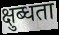
क्षुब्धता